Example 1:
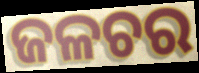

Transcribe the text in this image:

ଜଳଚର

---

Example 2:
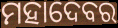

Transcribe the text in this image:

ମହାଦେବର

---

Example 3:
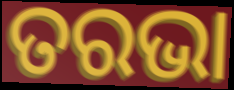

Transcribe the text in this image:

ତରଭା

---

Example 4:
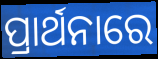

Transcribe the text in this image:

ପ୍ରାର୍ଥନାରେ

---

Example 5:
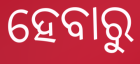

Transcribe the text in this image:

ହେବାରୁ